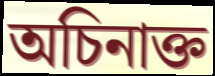
অচিনাক্ত